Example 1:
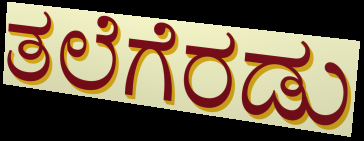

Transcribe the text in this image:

ತಲೆಗೆರಡು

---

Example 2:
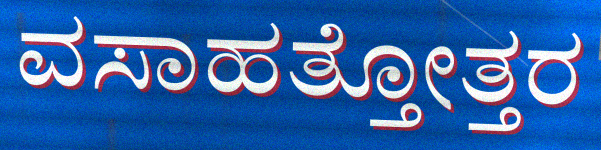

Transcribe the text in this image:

ವಸಾಹತ್ತೋತ್ತರ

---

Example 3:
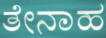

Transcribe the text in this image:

ತೇನಾಹ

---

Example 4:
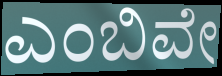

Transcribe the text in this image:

ಎಂಬಿವೇ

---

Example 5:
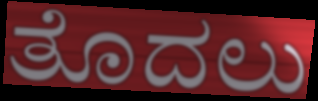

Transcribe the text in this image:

ತೊದಲು